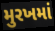
મુરખમાં